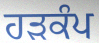
ਹਡ਼ਕੰਪ